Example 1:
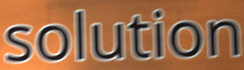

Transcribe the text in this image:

solution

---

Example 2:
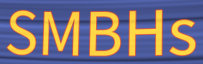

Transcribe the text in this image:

SMBHs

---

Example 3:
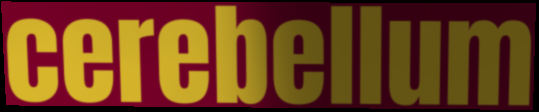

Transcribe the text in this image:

cerebellum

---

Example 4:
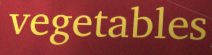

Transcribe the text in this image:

vegetables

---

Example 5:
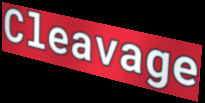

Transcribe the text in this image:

Cleavage